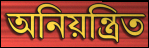
অনিয়ন্ত্রিত